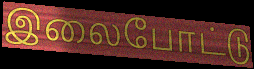
இலைபோட்டு